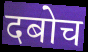
दबोच